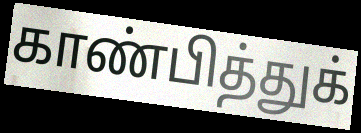
காண்பித்துக்